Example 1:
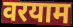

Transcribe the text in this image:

वरयाम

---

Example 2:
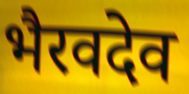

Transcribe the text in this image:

भैरवदेव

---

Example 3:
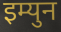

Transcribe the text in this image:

इम्‍युन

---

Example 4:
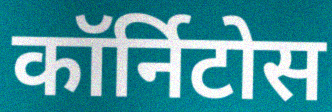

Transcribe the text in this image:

कॉर्निटोस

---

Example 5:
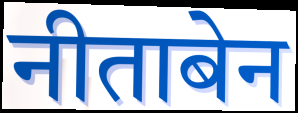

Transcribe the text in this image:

नीताबेन